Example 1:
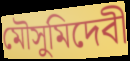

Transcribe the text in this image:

মৌসুমিদেবী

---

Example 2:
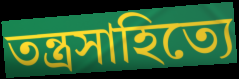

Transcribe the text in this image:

তন্ত্রসাহিত্যে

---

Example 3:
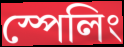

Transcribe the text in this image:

স্পেলিং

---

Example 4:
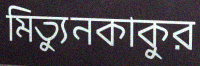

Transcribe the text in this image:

মিত্যুনকাকুর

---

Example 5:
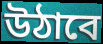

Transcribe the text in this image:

উঠাবে